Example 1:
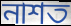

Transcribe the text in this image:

নাশত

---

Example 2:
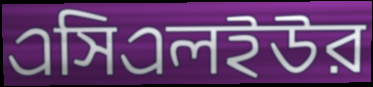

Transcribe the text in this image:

এসিএলইউর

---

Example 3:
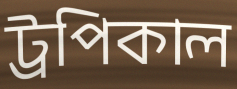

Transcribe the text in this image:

ট্রপিকাল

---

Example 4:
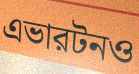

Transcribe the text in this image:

এভারটনও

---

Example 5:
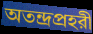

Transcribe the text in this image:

অতন্দ্রপ্রহরী